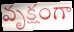
వృక్షంగా